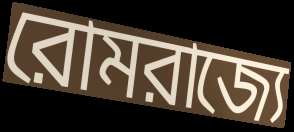
রোমরাজ্যে